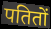
पतितों